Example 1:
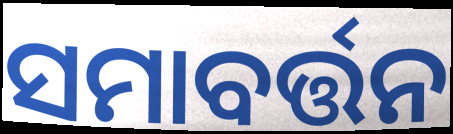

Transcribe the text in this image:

ସମାବର୍ତ୍ତନ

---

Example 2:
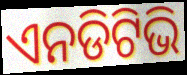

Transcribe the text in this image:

ଏନଡିଟିଭି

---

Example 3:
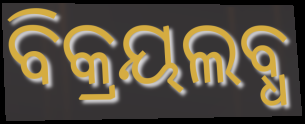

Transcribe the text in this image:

ବିକ୍ରୟଲବ୍ଧ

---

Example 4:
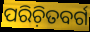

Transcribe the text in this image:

ପରିଚ଼ିତବର୍ଗ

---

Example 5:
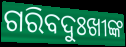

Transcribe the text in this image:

ଗରିବଦୁଃଖୀଙ୍କ